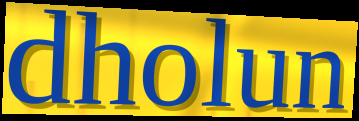
dholun